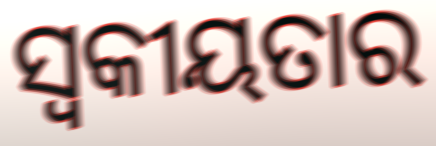
ସ୍ୱକୀୟତାର